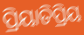
ପ୍ରିୟାତିପ୍ରିୟ